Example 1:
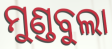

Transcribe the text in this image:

ମୁଣ୍ଡବୁଲା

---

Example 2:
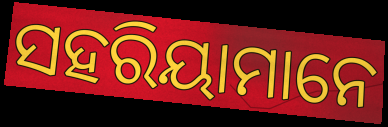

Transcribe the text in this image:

ସହରିୟାମାନେ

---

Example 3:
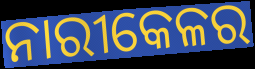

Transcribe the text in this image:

ନାରୀକେଳର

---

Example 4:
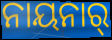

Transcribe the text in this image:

ନାୟନାର୍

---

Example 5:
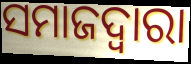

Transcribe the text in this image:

ସମାଜଦ୍ଵାରା